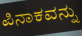
ಪಿನಾಕವನ್ನು